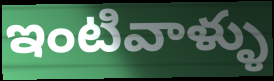
ఇంటివాళ్ళు